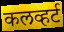
कलव्हर्ट